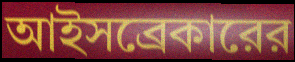
আইসব্রেকারের